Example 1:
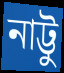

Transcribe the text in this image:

নাট্টু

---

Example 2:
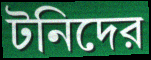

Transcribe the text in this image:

টনিদের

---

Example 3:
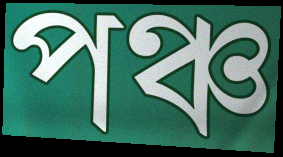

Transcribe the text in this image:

পঞ্চ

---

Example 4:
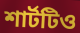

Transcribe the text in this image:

শার্টটিও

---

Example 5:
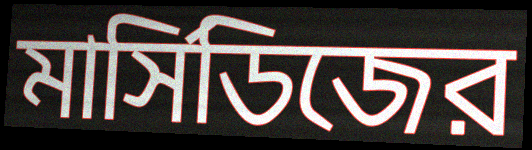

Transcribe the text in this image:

মার্সিডিজের